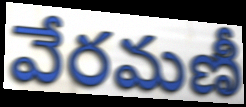
వేరమణీ